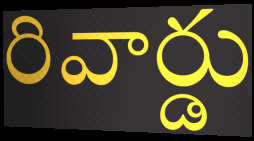
రివార్డు